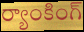
ర్యాంకింగ్